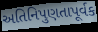
અતિનિપુણતાપૂર્વક